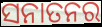
ସନାତନର